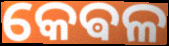
କେଵଳ